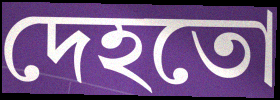
দেহতো